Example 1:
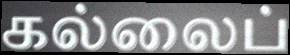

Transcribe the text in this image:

கல்லைப்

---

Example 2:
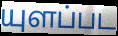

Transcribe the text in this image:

யுளப்பட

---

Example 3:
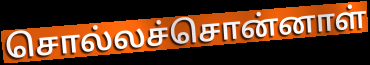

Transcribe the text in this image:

சொல்லச்சொன்னாள்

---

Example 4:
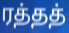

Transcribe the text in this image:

ரத்தத்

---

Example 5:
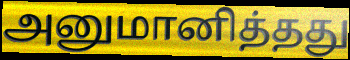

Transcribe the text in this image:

அனுமானித்தது